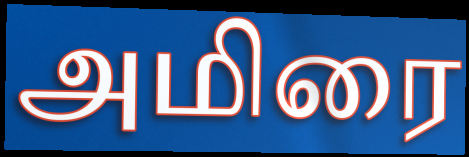
அமிரை